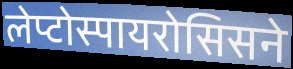
लेप्टोस्पायरोसिसने